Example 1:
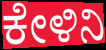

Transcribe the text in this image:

ಕೇಳಿನಿ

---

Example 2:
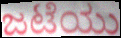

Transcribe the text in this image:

ಜಟೆಯು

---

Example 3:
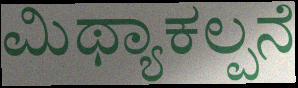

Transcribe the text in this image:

ಮಿಥ್ಯಾಕಲ್ಪನೆ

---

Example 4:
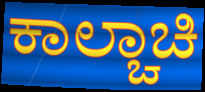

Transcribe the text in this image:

ಕಾಲ್ಚಾಚಿ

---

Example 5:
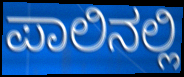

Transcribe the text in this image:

ಪಾಲಿನಲ್ಲಿ